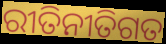
ରୀତିନୀତିଗତ